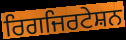
ਰਿਗਜਿਰਟੇਸ਼ਨ